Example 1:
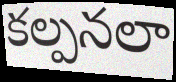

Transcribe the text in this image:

కల్పనలా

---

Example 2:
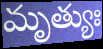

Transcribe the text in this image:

మృత్యుః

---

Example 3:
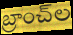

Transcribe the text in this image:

బ్రాంచ్‌ల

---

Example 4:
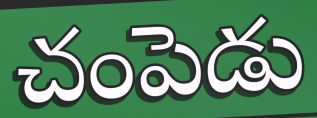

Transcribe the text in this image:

చంపెడు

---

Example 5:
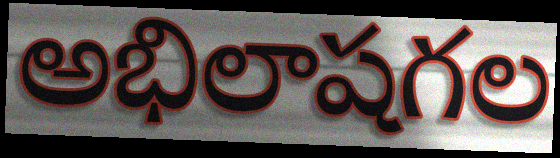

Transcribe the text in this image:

అభిలాషగల